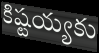
కిష్టయ్యకు